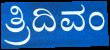
ತ್ರಿದಿವಂ